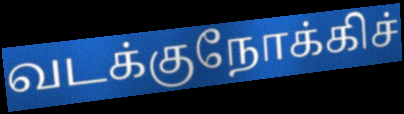
வடக்குநோக்கிச்